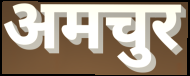
अमचुर